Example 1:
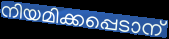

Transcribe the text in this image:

നിയമിക്കപ്പെടാന്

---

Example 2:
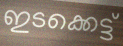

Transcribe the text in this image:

ഇടക്കെട്ട്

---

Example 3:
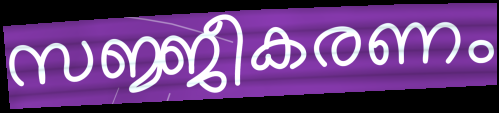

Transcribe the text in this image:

സജ്ജീകരണം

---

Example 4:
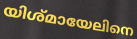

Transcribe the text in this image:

യിശ്മായേലിനെ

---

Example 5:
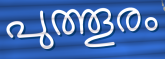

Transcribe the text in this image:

പുത്തൂരം